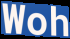
Woh